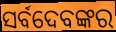
ସର୍ବଦେବଙ୍କର